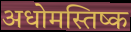
अधोमस्तिष्क